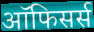
ऑफिसर्स